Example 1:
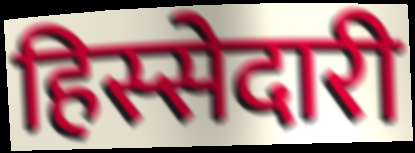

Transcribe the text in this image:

हिस्‍सेदारी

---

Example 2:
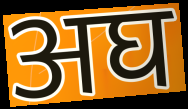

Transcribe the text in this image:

अघ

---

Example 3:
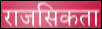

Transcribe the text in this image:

राजसिकता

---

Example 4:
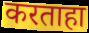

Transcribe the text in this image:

करताहा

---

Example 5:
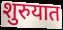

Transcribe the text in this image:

शुरुयात